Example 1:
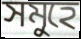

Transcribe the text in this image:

সমুহে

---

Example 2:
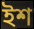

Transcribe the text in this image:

ইশ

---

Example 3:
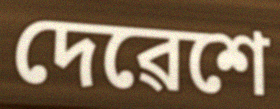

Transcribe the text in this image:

দেৱেশে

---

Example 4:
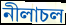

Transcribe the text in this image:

নীলাচল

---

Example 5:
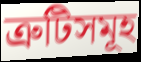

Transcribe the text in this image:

ত্ৰুটিসমূহ